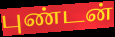
புண்டன்